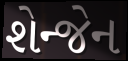
શેન્જેન